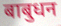
बाबुधन